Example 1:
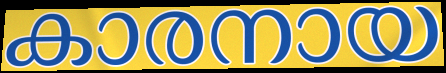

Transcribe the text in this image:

കാരനായ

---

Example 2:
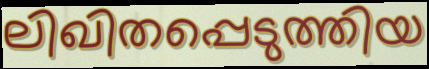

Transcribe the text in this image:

ലിഖിതപ്പെടുത്തിയ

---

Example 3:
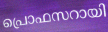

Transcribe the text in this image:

പ്രൊഫസറായി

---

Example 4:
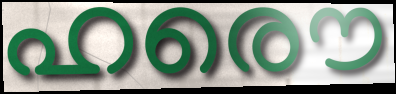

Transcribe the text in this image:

ഹരൌ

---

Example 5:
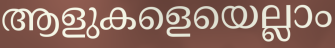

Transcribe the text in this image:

ആളുകളെയെല്ലാം